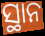
ସ୍ଥାନ